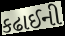
કઢાઈની